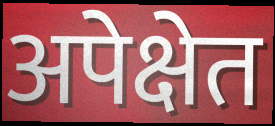
अपेक्षेत